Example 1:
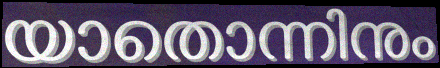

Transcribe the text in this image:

യാതൊന്നിനും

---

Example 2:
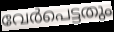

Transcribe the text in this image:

വേർപെട്ടതും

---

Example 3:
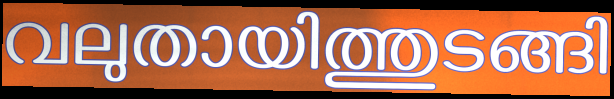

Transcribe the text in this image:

വലുതായിത്തുടങ്ങി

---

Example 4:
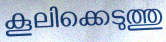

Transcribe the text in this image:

കൂലിക്കെടുത്തു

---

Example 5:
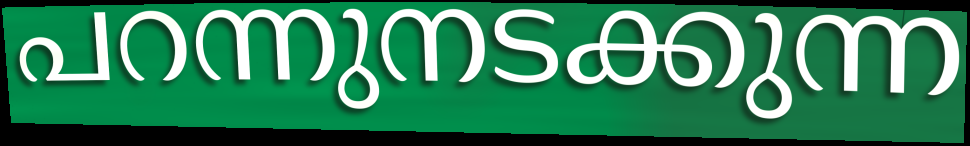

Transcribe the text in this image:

പറന്നുനടക്കുന്ന